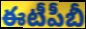
ఈటీపీబీ